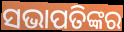
ସଭାପତିଙ୍କର